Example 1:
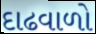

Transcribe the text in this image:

દાઢવાળો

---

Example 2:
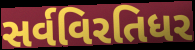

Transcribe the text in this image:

સર્વવિરતિધર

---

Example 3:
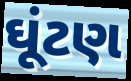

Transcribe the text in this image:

ઘૂંટણ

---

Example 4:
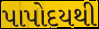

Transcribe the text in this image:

પાપોદયથી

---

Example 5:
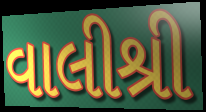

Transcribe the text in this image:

વાલીશ્રી